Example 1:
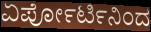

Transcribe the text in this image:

ಏರ್ಪೋರ್ಟಿನಿಂದ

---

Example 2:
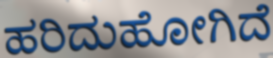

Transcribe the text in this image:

ಹರಿದುಹೋಗಿದೆ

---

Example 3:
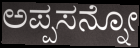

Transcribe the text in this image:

ಅಪ್ಪಸನ್ನೋ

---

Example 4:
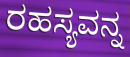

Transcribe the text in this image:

ರಹಸ್ಯವನ್ನ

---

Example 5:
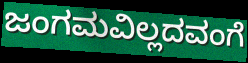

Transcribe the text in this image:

ಜಂಗಮವಿಲ್ಲದವಂಗೆ